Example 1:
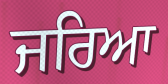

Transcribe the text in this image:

ਜਰਿਆ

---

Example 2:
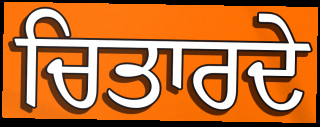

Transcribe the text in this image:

ਚਿਤਾਰਦੇ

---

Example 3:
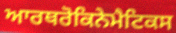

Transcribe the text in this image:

ਆਰਥਰੋਕਿਨੇਮੈਟਿਕਸ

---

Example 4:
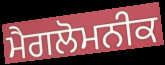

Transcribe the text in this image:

ਮੈਗਲੋਮਨੀਕ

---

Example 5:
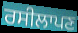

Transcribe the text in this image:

ਰਸੀਲਾਪਣ